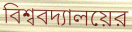
বিশ্ববদ্যালয়ের